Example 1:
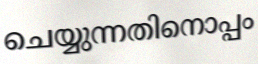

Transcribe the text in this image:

ചെയ്യുന്നതിനൊപ്പം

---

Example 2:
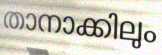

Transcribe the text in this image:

താനാക്കിലും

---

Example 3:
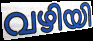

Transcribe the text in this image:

വഴിയി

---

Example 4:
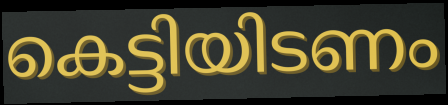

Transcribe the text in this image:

കെട്ടിയിടണം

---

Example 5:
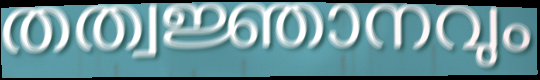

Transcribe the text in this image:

തത്വജ്ഞാനവും